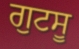
ਗੁਟਸੂ